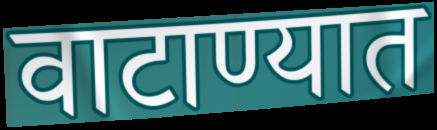
वाटाण्यात